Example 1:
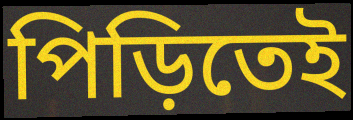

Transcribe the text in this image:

পিড়িতেই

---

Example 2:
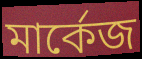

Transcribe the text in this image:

মার্কেজ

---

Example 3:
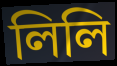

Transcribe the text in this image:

লিলি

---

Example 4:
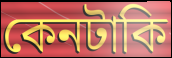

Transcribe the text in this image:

কেনটাকি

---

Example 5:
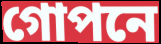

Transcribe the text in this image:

গোপনে